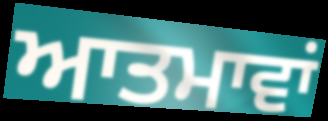
ਆਤਮਾਵਾਂ